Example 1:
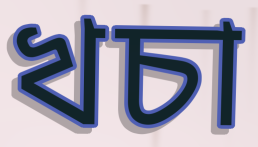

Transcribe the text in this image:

খচা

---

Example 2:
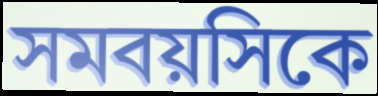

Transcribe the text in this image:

সমবয়সিকে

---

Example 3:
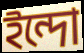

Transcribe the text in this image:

ইন্দো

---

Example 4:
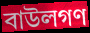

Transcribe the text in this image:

বাউলগণ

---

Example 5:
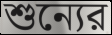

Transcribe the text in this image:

শুন্যের